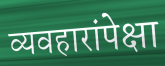
व्यवहारांपेक्षा